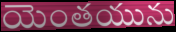
యెంతయును